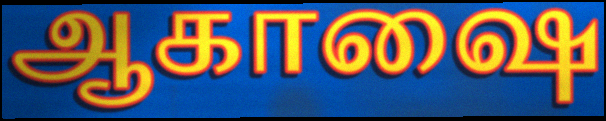
ஆகாஷை